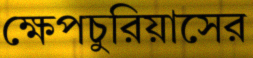
ক্ষেপচুরিয়াসের